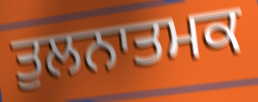
ਤੁਲਨਾਤਮਕ